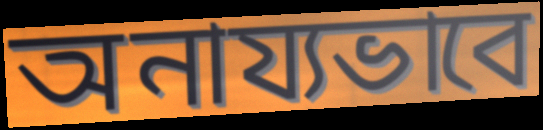
অনায্যভাবে